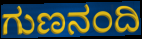
ಗುಣನಂದಿ